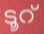
ടൂറ്